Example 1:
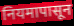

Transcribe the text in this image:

नियमापासून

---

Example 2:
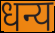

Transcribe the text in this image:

धन्य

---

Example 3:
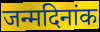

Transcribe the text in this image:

जन्मदिनांक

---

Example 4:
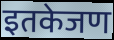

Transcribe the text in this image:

इतकेजण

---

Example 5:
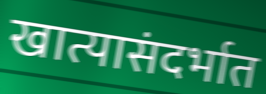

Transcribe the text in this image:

खात्यासंदर्भात